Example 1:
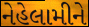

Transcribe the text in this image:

નેહેલામીને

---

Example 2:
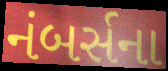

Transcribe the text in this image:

નંબર્સના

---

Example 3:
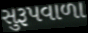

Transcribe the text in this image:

સુરૂપવાળા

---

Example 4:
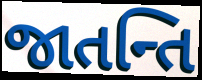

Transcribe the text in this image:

જાતન્તિ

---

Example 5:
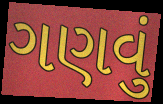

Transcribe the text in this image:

ગણવું